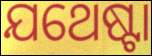
ଯଥେଷ୍ଟା